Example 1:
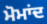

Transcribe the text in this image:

ਮੋਮਾਂਦ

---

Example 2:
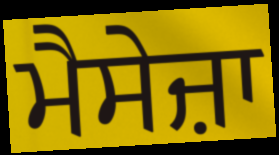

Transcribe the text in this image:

ਮੈਸੇਜ਼ਾ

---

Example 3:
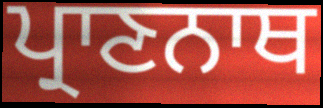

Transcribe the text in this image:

ਪ੍ਰਾਣਨਾਥ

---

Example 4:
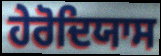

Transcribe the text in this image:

ਹੇਰੋਦਿਯਾਸ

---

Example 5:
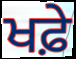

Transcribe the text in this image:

ਖਫ਼ੇ